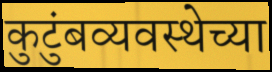
कुटुंबव्यवस्थेच्या